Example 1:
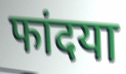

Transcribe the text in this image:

फांदया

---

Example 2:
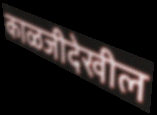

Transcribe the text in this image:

काळजीदेखील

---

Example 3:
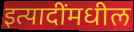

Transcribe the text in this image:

इत्यादींमधील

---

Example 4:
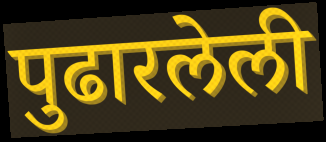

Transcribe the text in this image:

पुढारलेली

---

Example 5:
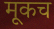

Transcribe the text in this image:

मूकच